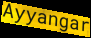
Ayyangar